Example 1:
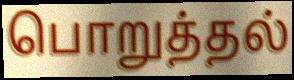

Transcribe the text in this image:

பொறுத்தல்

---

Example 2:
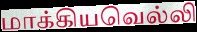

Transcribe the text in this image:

மாக்கியவெல்லி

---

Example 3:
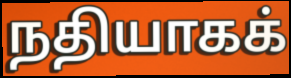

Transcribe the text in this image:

நதியாகக்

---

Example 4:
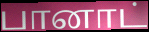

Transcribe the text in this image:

பானாட்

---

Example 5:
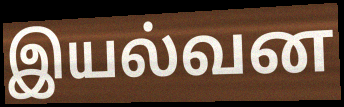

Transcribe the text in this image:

இயல்வன